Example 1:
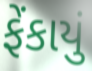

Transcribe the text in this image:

ફેંકાયું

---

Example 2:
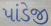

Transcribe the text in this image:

પાંડેજી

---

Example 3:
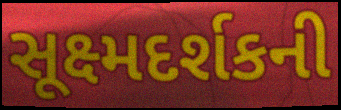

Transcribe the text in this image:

સૂક્ષ્મદર્શકની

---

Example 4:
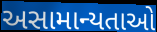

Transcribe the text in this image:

અસામાન્યતાઓ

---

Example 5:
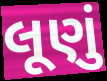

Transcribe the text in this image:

લૂણું